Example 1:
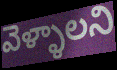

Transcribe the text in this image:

వెళ్ళాలని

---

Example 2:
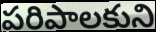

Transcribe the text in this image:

పరిపాలకుని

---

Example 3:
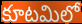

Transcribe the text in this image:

కూటమిలో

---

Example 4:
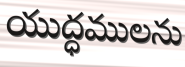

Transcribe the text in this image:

యుద్ధములను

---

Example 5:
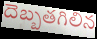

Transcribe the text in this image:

దెబ్బతగిలిన